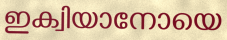
ഇക്വിയാനോയെ